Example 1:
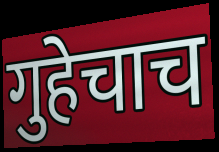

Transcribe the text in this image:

गुहेचाच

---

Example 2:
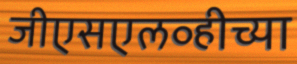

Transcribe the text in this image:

जीएसएलव्हीच्या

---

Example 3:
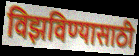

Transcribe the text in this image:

विझविण्यासाठी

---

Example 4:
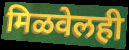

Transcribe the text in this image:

मिळवेलही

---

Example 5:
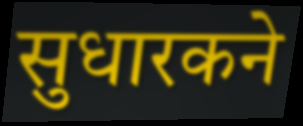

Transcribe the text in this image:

सुधारकने